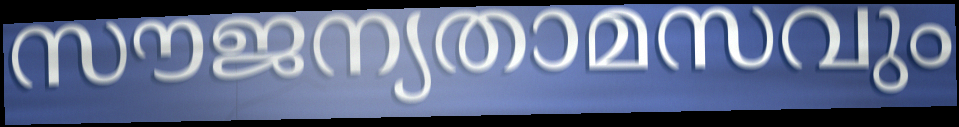
സൗജന്യതാമസവും